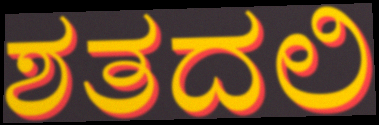
ಶತದಲಿ